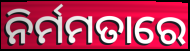
ନିର୍ମମତାରେ